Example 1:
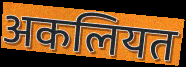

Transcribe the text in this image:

अकलियत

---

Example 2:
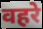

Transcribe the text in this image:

वहरे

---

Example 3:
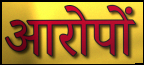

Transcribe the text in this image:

आरोपों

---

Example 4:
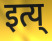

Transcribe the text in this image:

इत्य्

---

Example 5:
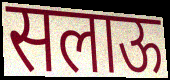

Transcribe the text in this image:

सलाऊ